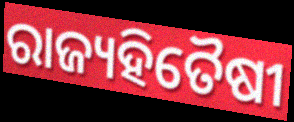
ରାଜ୍ୟହିତୈଷୀ